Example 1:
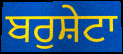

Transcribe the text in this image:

ਬਰੁਸ਼ੇਟਾ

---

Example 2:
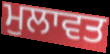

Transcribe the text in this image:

ਮੁਲਾਵਤ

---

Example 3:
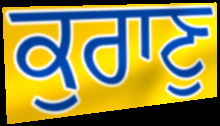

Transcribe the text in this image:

ਕੁਰਾਣੁ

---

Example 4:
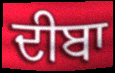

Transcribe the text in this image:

ਦੀਬਾ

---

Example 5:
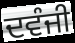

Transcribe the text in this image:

ਦਵੰਜੀ